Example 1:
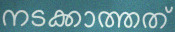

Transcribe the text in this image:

നടക്കാത്തത്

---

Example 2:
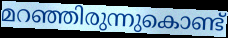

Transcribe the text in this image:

മറഞ്ഞിരുന്നുകൊണ്ട്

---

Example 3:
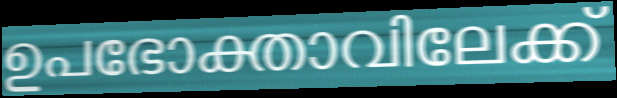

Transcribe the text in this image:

ഉപഭോക്താവിലേക്ക്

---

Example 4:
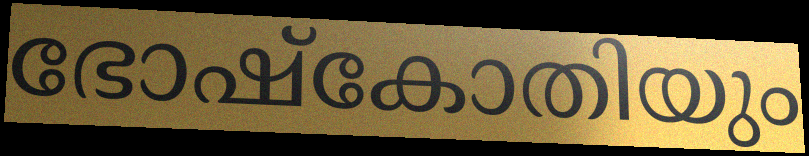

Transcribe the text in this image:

ഭോഷ്കോതിയും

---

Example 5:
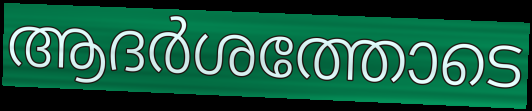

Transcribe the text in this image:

ആദർശത്തോടെ